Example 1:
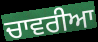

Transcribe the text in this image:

ਚਾਵਰੀਆ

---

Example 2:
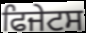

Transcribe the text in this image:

ਫਿਜੇਟਸ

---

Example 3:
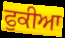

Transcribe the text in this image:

ਫੁਕੀਆ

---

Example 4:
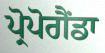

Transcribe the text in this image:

ਪ੍ਰੋਪੋਗੈਂਡਾ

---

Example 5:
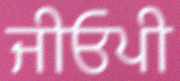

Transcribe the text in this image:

ਜੀਓਪੀ